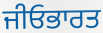
ਜੀਓਭਾਰਤ